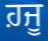
ਹ਼ਜੂ